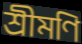
শ্রীমণি